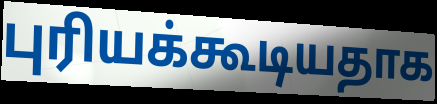
புரியக்கூடியதாக